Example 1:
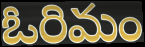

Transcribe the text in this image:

ఓరిమం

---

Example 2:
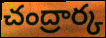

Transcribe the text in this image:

చంద్రార్క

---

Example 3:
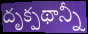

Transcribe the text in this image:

దృక్పథాన్నీ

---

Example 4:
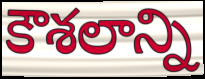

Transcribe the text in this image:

కౌశలాన్ని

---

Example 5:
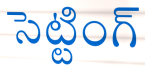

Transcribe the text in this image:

సెట్టింగ్